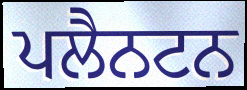
ਪਲੈਨਟਨ